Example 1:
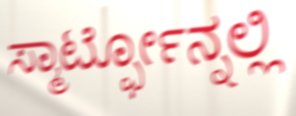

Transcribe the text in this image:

ಸ್ಮಾರ್ಟ್ಫೋನ್ನಲ್ಲಿ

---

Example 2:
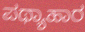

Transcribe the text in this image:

ಪಥ್ಯಾಹಾರ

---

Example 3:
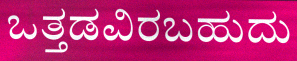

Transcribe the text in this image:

ಒತ್ತಡವಿರಬಹುದು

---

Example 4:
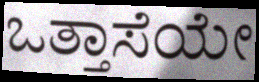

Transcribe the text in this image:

ಒತ್ತಾಸೆಯೇ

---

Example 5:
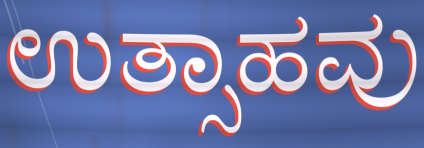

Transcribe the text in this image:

ಉತ್ಸಾಹವು